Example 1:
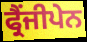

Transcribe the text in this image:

ਫ੍ਰੈਂਜੀਪੇਨ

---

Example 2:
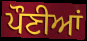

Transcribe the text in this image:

ਪੌਣੀਆਂ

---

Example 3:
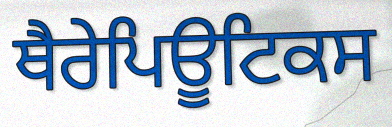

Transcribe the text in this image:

ਥੈਰੇਪਿਊਟਿਕਸ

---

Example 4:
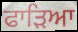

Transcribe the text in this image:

ਫਾੜਿਆ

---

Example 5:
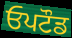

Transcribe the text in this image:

ਓਪਟੌਡ